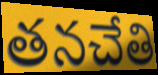
తనచేతి